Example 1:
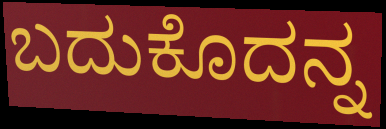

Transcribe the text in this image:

ಬದುಕೊದನ್ನ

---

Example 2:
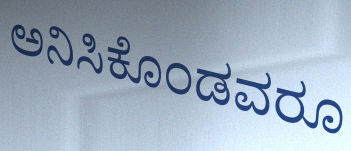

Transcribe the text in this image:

ಅನಿಸಿಕೊಂಡವರೂ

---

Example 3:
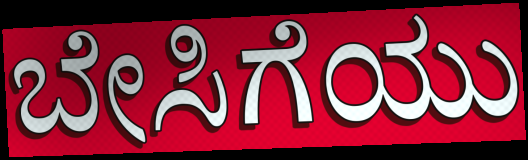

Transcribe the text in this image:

ಬೇಸಿಗೆಯು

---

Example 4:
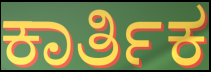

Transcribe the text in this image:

ಕಾರ್ತಿಕ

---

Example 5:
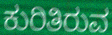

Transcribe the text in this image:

ಕುರಿತಿರುವ